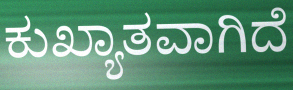
ಕುಖ್ಯಾತವಾಗಿದೆ